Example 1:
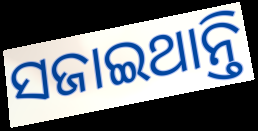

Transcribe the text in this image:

ସଜାଇଥାନ୍ତି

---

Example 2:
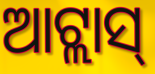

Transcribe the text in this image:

ଆଟ୍ଲାସ୍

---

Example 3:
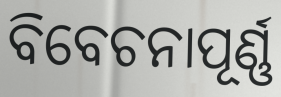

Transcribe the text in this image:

ବିବେଚନାପୂର୍ଣ୍ଣ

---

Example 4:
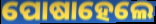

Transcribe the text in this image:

ପୋଷାହେଲେ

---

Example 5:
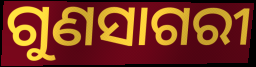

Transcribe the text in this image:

ଗୁଣସାଗରୀ